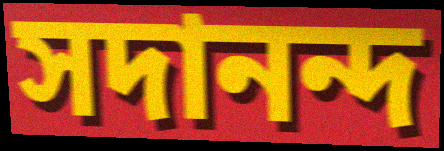
সদানন্দ